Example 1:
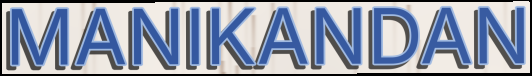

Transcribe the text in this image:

MANIKANDAN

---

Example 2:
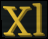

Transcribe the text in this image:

Xl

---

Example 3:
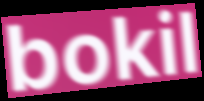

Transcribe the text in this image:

bokil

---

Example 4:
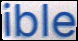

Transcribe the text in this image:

ible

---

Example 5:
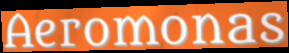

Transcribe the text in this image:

Aeromonas